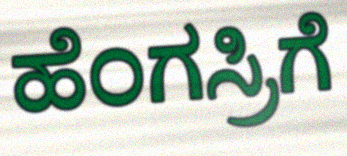
ಹೆಂಗಸ್ರಿಗೆ